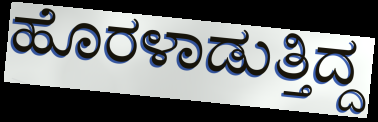
ಹೊರಳಾಡುತ್ತಿದ್ದ